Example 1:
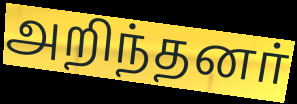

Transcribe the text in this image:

அறிந்தனர்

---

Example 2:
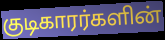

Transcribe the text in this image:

குடிகாரர்களின்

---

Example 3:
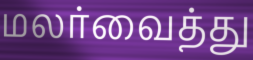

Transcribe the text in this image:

மலர்வைத்து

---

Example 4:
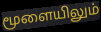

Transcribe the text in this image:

மூளையிலும்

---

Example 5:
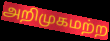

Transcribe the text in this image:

அறிமுகமற்ற